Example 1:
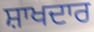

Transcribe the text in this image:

ਸ਼ਾਖਦਾਰ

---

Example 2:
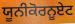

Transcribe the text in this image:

ਯੂਨੀਕੋਰਨੂਏਟ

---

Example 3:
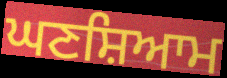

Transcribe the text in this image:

ਘਣਸ਼ਿਆਮ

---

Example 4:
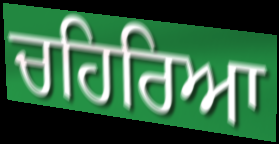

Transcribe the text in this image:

ਚਹਿਰਿਆ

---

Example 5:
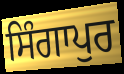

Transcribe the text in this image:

ਸਿੰਗਾਪੁਰ